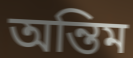
অন্তিম